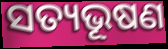
ସତ୍ୟଭୂଷଣ